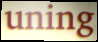
uning